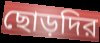
ছোড়দির